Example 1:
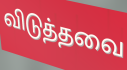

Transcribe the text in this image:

விடுத்தவை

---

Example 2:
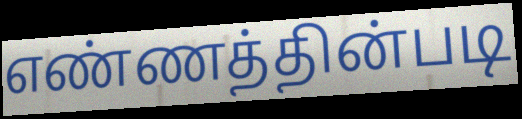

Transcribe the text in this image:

எண்ணத்தின்படி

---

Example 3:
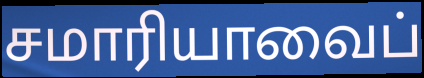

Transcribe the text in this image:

சமாரியாவைப்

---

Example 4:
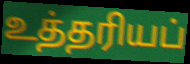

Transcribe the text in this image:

உத்தரியப்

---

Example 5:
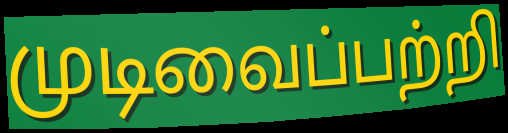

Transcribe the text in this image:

முடிவைப்பற்றி